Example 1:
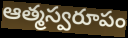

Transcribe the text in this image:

ఆత్మస్వరూపం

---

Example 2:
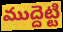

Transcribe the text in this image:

ముద్దెట్టి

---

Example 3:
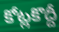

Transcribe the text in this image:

కోట్లకొద్దీ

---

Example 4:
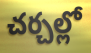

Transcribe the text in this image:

చర్చల్లో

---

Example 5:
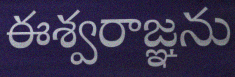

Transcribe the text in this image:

ఈశ్వరాజ్ఞను